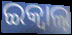
ଇକ୍ୱାଲ୍